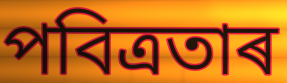
পবিত্ৰতাৰ